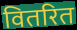
वितरित